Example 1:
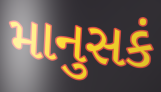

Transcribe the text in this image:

માનુસકં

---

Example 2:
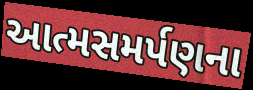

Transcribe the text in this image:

આત્મસમર્પણના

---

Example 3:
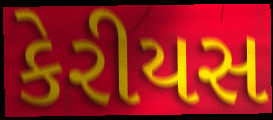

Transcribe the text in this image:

કેરીયસ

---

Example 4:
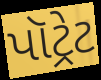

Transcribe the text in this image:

પૉટ્રેટ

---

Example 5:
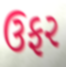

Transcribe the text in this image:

ઉફર